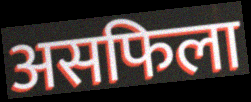
असफिला